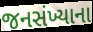
જનસંખ્યાના